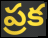
ప్రక